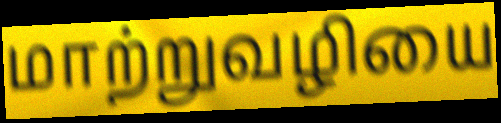
மாற்றுவழியை